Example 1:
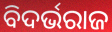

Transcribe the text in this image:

ବିଦର୍ଭରାଜ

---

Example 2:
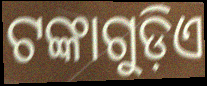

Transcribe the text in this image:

ଟଙ୍କାଗୁଡ଼ିଏ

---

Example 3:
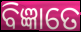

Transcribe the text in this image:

ବିଜ୍ଞାତେ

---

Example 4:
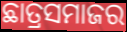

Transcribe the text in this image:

ଛାତ୍ରସମାଜର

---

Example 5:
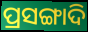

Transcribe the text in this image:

ପ୍ରସଙ୍ଗାଦି